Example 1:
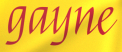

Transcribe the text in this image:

gayne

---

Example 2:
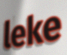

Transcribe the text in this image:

leke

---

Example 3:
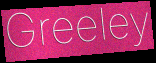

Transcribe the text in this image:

Greeley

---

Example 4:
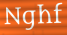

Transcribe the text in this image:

Nghf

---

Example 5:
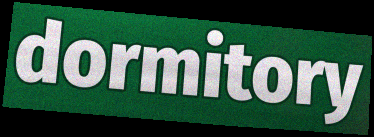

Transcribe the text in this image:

dormitory